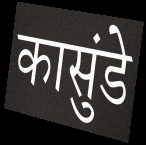
कासुंडे